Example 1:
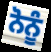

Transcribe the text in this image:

ਨੋਨੂੰ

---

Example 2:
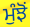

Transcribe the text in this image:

ਮੁੰਝੋਂ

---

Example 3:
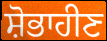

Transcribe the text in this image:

ਸ਼ੋਭਾਹੀਣ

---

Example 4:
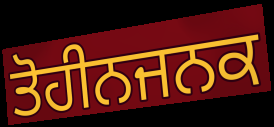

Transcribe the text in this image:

ਤੋਹੀਨਜਨਕ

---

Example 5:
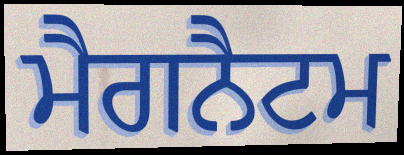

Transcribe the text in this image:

ਮੈਗਨੈਟਮ